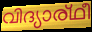
വിദ്യാര്ഥീ